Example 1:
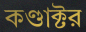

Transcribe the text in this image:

কণ্ডাক্টর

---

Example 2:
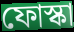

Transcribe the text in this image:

ফোস্কা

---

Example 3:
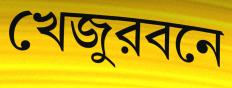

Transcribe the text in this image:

খেজুরবনে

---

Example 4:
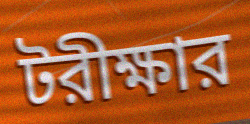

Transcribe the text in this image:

টরীক্ষার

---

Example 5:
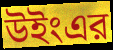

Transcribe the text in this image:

উইংএর